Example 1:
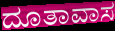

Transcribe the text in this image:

ದೂತಾವಾಸ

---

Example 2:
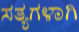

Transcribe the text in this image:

ಸತ್ಯಗಳಾಗಿ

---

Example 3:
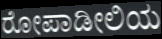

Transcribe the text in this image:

ರೋಪಾಡೀಲಿಯ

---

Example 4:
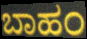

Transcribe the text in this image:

ಬಾಹಂ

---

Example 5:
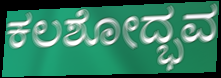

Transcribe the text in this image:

ಕಲಶೋದ್ಭವ